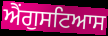
ਐਂਗੁਸਟਿਆਸ